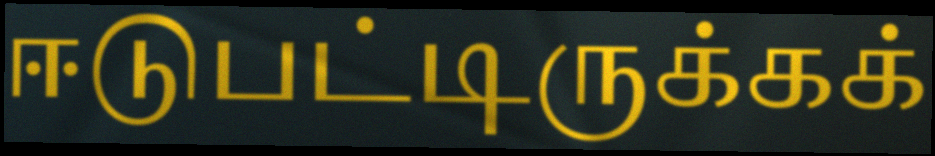
ஈடுபட்டிருக்கக்